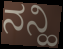
ನನ್ಹಿ